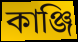
কাঞ্জি